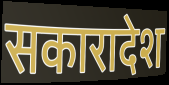
सकारादेश